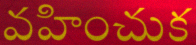
వహించుక